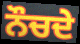
ਨੌਚਦੇ